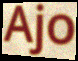
Ajo